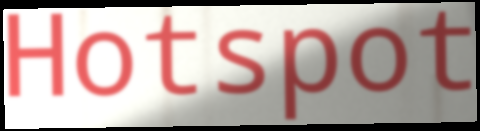
Hotspot